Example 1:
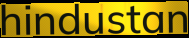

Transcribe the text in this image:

hindustan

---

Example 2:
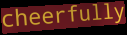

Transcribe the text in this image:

cheerfully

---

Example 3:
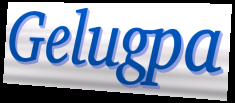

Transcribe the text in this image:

Gelugpa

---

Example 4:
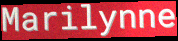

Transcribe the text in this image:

Marilynne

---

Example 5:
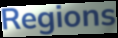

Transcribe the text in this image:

Regions